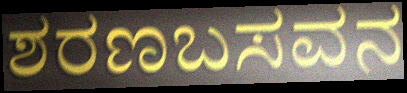
ಶರಣಬಸವನ